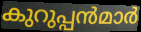
കുറുപ്പൻമാർ